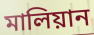
মালিয়ান